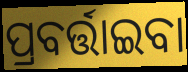
ପ୍ରବର୍ତ୍ତାଇବା